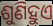
ଶୁଣିହୁଏ